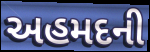
અહમદની